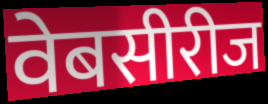
वेबसीरीज